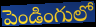
పెండింగులో